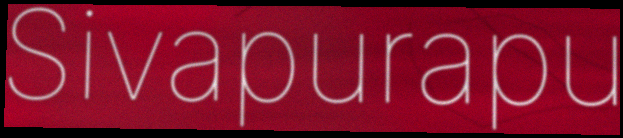
Sivapurapu